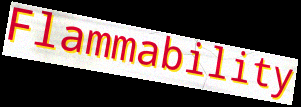
Flammability